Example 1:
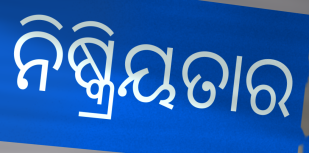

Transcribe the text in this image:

ନିଷ୍କ୍ରିୟତାର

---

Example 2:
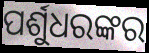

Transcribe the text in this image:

ପର୍ଶୁଧରଙ୍କର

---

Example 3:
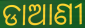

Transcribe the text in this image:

ଡାଆଣୀ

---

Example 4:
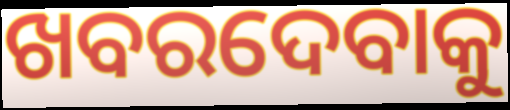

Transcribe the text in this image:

ଖବରଦେବାକୁ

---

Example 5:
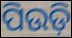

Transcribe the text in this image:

ପିଉଡ଼ି